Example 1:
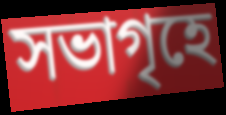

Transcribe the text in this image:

সভাগৃহে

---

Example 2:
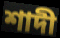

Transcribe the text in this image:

শাদী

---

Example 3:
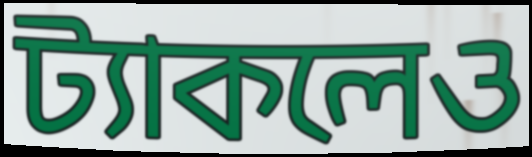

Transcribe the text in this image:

ট্যাকলেও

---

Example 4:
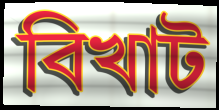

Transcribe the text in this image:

বিখাট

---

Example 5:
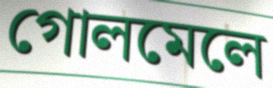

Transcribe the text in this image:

গোলমেলে